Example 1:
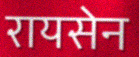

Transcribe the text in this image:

रायसेन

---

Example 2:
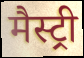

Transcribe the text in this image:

मैस्ट्री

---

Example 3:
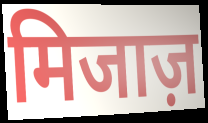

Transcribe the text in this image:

मिजाज़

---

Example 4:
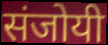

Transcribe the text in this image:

संजोयी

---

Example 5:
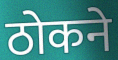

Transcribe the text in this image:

ठोकने